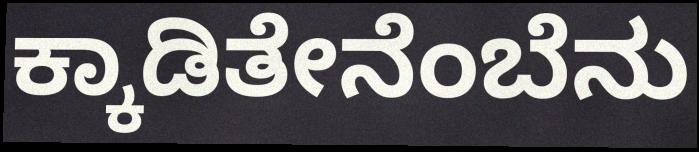
ಕ್ಕಾಡಿತೇನೆಂಬೆನು